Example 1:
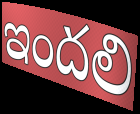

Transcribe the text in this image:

ఇందలి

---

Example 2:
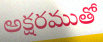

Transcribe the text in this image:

అక్షరముతో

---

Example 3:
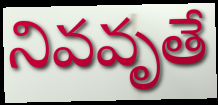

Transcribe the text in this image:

నివవృతే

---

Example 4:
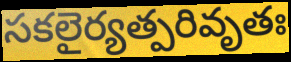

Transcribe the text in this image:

సకలైర్యత్పరివృతః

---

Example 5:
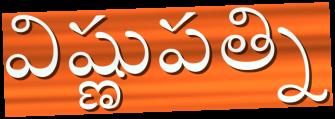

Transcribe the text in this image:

విష్ణుపత్ని